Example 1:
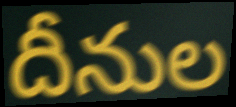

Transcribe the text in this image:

దీనుల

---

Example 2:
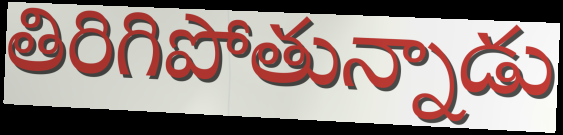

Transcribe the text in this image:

తిరిగిపోతున్నాడు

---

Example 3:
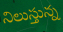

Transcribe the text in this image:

నిలుస్తున్న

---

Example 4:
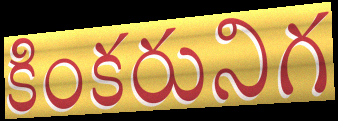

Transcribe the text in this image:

కింకరునిగ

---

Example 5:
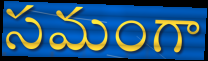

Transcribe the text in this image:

సమంగా